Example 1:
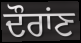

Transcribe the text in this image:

ਦੌਰਾਂਣ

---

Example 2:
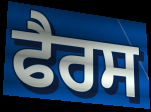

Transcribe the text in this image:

ਫੈਰਸ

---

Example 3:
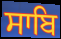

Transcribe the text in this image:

ਸਾਬਿ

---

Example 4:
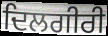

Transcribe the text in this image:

ਦਿਲਗੀਰੀ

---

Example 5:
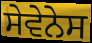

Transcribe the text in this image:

ਸੇਵੇਨੇਸ